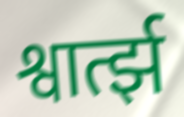
श्वार्त्झ